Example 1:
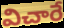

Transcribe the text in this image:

విచారే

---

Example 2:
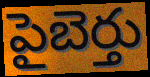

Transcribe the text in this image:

పైబెర్తు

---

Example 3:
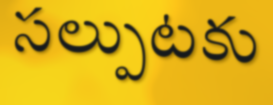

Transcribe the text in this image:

సల్పుటకు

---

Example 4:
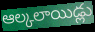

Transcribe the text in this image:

ఆల్కలాయిడ్లు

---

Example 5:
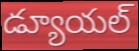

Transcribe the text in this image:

డ్యూయల్